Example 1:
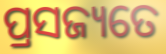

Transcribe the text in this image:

ପ୍ରସଜ୍ୟତେ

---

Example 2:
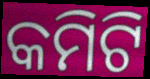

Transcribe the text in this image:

କମିଟି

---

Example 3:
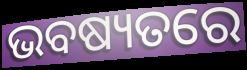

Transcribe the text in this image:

ଭବଷ୍ୟତରେ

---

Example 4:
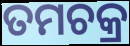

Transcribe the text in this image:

ତମଚକ୍ର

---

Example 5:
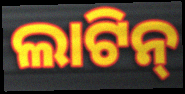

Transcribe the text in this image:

ଲାଟିନ୍